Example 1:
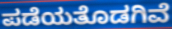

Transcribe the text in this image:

ಪಡೆಯತೊಡಗಿವೆ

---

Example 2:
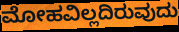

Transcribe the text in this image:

ಮೋಹವಿಲ್ಲದಿರುವುದು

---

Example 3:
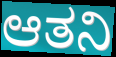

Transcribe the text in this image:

ಆತನಿ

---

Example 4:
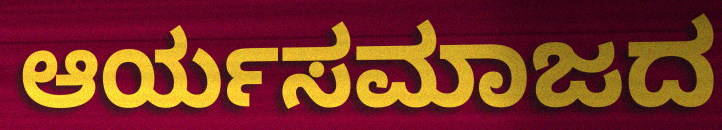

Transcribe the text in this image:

ಆರ್ಯಸಮಾಜದ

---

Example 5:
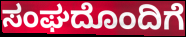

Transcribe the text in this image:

ಸಂಘದೊಂದಿಗೆ